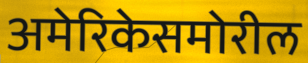
अमेरिकेसमोरील